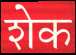
शेक